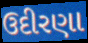
ઉદીરણા